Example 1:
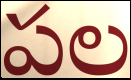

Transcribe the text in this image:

పల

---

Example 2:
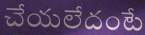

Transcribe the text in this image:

చేయలేదంటే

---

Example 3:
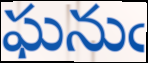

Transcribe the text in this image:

ఘనుఁ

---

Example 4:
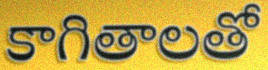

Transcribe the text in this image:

కాగితాలతో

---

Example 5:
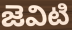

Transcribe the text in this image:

జెవిటి